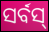
ସର୍ବସ୍